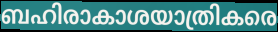
ബഹിരാകാശയാത്രികരെ